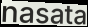
nasata